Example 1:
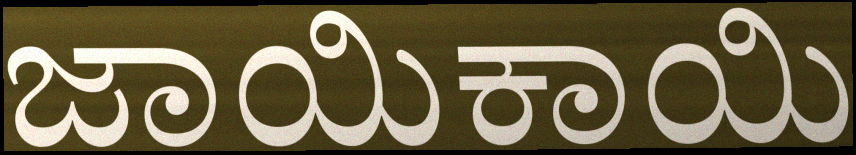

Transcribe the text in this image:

ಜಾಯಿಕಾಯಿ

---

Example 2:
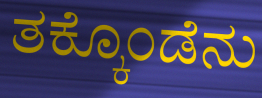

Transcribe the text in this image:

ತಕ್ಕೊಂಡೆನು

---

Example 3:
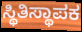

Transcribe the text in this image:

ಸ್ಥಿತಿಸ್ಥಾಪಕ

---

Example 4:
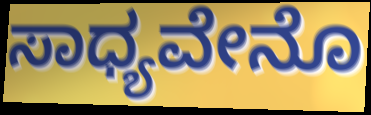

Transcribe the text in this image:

ಸಾಧ್ಯವೇನೊ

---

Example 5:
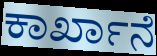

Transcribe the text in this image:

ಕಾರ್ಖಾನೆ